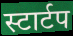
स्टार्टप